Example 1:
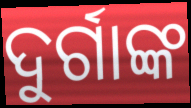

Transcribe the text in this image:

ଦୁର୍ଗାଙ୍କ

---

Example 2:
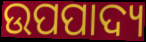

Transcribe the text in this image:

ଉପପାଦ୍ୟ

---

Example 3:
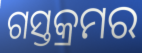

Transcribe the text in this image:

ଗସ୍ତକ୍ରମର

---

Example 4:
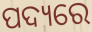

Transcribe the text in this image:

ପଦ୍ୟରେ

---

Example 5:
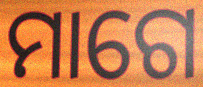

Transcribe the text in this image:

ମାଗେ